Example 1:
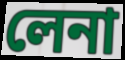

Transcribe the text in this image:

লেনা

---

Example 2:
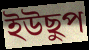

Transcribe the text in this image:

ইউছুপ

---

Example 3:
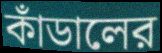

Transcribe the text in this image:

কাঁডালের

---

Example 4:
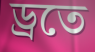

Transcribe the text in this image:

ড্রতে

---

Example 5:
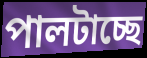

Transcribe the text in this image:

পালটাচ্ছে